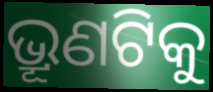
ଭ୍ରୂଣଟିକୁ